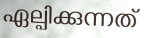
ഏല്പിക്കുന്നത്